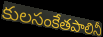
కులసంకేతపాలినీ